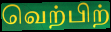
வெற்பிற்